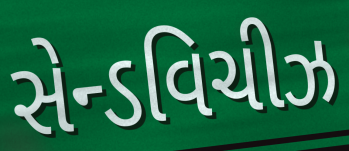
સેન્ડવિચીઝ